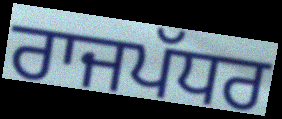
ਰਾਜਪੱਧਰ